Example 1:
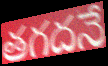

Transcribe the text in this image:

తగదనే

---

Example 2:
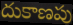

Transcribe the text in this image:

దుకాణపు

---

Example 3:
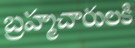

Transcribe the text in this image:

బ్రహ్మచారులకి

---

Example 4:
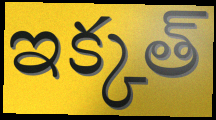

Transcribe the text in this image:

ఇక్కత్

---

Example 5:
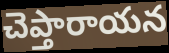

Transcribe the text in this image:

చెప్తారాయన